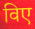
विए